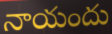
నాయందు